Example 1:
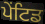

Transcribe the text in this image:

ਪੇਂਟਿਡ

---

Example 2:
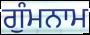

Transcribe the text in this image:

ਗੁੰਮਨਾਮ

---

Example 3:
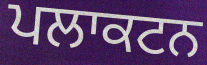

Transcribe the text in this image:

ਪਲਾਕਟਨ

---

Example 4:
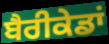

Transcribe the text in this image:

ਬੈਰੀਕੇਡਾਂ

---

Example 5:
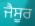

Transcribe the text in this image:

ਜੈਸੂਰ